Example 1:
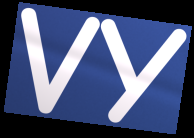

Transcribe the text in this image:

VY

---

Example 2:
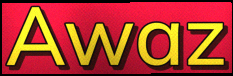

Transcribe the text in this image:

Awaz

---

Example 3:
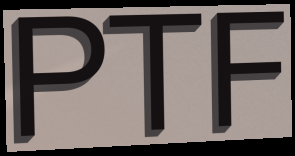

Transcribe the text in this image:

PTF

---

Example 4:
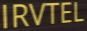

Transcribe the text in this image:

IRVTEL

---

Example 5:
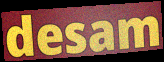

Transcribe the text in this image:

desam